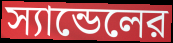
স্যান্ডেলের